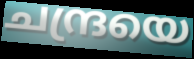
ചന്ദ്രയെ